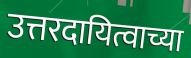
उत्तरदायित्वाच्या